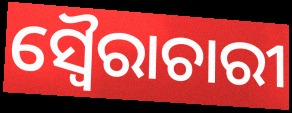
ସ୍ୱୈରାଚାରୀ